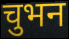
चुभन